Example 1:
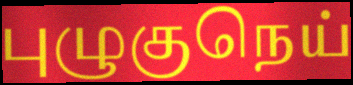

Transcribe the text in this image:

புழுகுநெய்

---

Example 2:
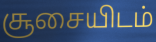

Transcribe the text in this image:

சூசையிடம்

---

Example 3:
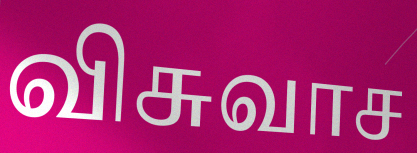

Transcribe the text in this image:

விசுவாச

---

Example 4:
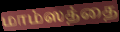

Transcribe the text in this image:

மாம்ஸத்தை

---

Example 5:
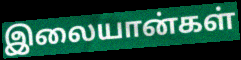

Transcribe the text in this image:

இலையான்கள்